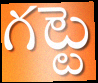
గట్టె